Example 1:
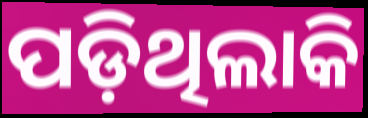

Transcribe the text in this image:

ପଡ଼ିଥିଲାକି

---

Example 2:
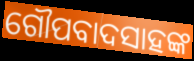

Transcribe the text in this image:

ଗୌପବାଦସାହଙ୍କ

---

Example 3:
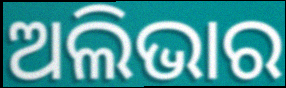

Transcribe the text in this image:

ଅଲିଭାର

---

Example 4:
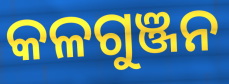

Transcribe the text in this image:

କଳଗୁଞ୍ଜନ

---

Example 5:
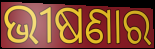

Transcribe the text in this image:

ଭୀଷଣାର